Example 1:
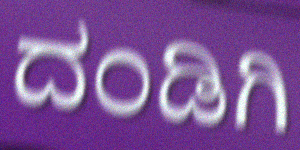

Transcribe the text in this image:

ದಂಡಿಗಿ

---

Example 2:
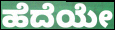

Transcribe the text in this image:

ಹೆದೆಯೇ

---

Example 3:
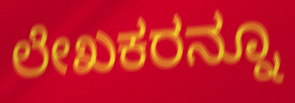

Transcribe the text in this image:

ಲೇಖಕರನ್ನೂ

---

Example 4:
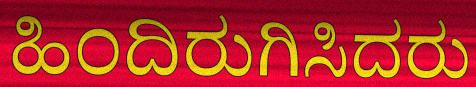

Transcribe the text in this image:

ಹಿಂದಿರುಗಿಸಿದರು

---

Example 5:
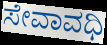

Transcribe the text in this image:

ಸೇವಾವಧಿ